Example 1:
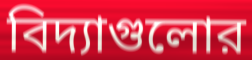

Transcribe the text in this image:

বিদ্যাগুলোর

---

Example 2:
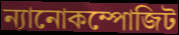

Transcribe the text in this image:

ন্যানোকম্পোজিট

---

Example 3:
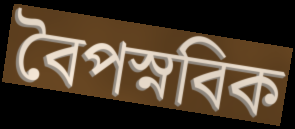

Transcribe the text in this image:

বৈপস্নবিক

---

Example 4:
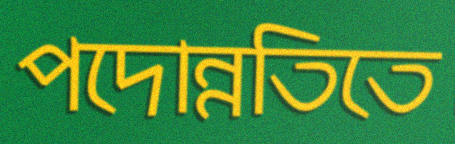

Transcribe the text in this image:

পদোন্নতিতে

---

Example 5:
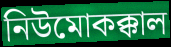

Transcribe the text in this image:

নিউমোকক্কাল